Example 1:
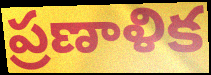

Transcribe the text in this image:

ప్రణాళిక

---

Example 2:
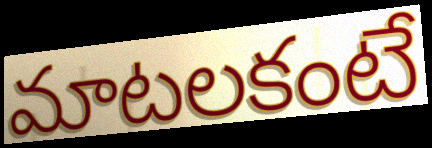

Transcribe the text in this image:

మాటలకంటే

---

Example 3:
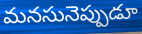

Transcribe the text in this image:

మనసునెప్పుడూ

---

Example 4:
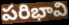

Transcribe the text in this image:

పరిభావి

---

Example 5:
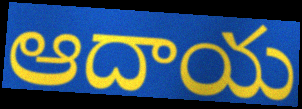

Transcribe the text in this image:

ఆదాయ